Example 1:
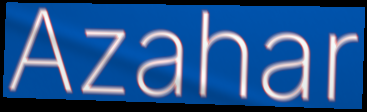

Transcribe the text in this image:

Azahar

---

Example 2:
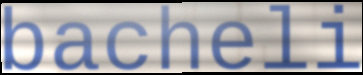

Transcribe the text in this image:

bacheli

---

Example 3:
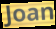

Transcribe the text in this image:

Joan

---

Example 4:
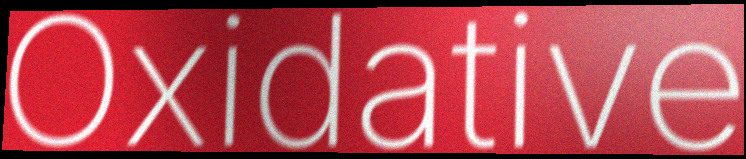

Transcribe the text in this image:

Oxidative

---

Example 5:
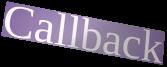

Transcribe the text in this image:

Callback